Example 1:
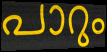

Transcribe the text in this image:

പാറും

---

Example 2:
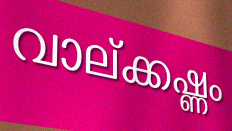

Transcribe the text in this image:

വാല്ക്കഷ്ണം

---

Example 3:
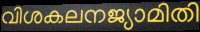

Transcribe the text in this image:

വിശകലനജ്യാമിതി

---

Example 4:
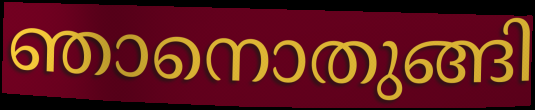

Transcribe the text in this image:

ഞാനൊതുങ്ങി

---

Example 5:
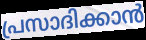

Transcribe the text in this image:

പ്രസാദിക്കാൻ